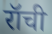
रॉची